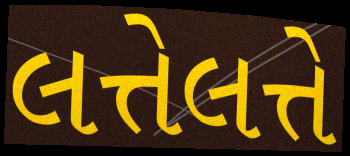
લત્તેલત્તે